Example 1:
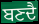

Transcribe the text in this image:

ਬਣਦੈ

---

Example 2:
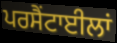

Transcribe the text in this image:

ਪਰਸੈਂਟਾਈਲਾਂ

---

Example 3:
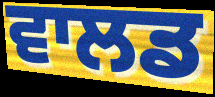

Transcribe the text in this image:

ਵਾਲਡ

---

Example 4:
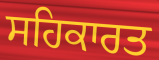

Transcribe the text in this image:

ਸਹਿਕਾਰਤ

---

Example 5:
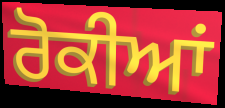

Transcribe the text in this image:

ਰੋਕੀਆਂ